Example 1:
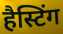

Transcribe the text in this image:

हैस्टिंग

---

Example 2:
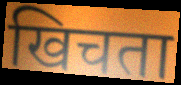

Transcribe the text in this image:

खिचता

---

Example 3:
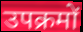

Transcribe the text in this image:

उपक्रमों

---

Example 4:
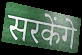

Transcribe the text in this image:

सरकेंगे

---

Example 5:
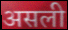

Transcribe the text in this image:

असली